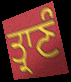
ਤ੍ਰਾਣੰ